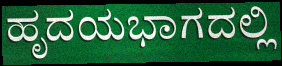
ಹೃದಯಭಾಗದಲ್ಲಿ